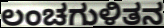
ಲಂಚಗುಳಿತನ